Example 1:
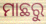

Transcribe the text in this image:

ମାଛରୁ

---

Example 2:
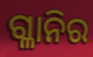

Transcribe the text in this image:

ଗ୍ଳାନିର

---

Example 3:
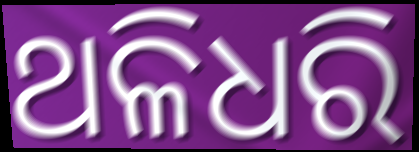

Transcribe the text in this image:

ଥଳିଧରି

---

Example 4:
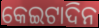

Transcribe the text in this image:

କେଇଟାଦିନ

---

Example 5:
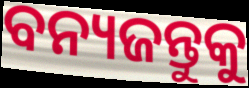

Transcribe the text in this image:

ବନ୍ୟଜନ୍ତୁକୁ